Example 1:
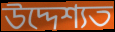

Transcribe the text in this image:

উদ্দেশ্যত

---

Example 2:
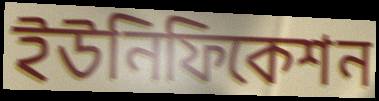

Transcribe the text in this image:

ইউনিফিকেশন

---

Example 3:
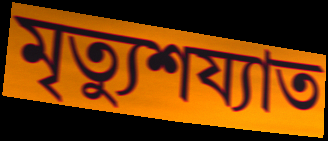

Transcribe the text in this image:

মৃত্যুশয্যাত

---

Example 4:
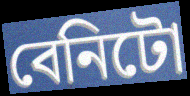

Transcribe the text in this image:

বেনিটো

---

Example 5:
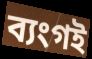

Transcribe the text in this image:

ব্যংগই